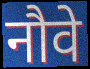
नौवे